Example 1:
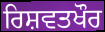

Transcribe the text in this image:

ਰਿਸ਼ਵਤਖੌਰ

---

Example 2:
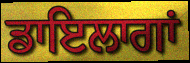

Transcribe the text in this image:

ਡਾਇਲਾਗਾਂ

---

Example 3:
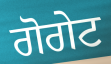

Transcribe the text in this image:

ਗੋਗੇਟ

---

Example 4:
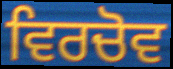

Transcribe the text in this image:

ਵਿਰਚੋਵ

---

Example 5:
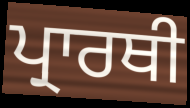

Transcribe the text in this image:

ਪ੍ਰਾਰਥੀ